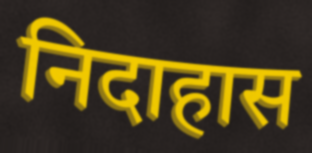
निदाहास